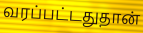
வரப்பட்டதுதான்